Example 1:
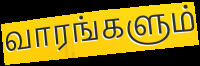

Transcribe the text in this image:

வாரங்களும்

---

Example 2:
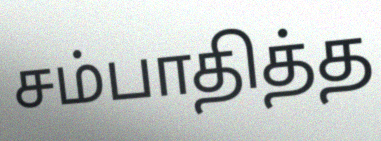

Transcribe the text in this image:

சம்பாதித்த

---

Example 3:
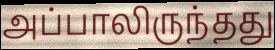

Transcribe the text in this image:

அப்பாலிருந்தது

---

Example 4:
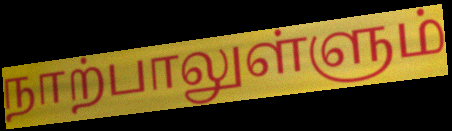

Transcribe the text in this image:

நாற்பாலுள்ளும்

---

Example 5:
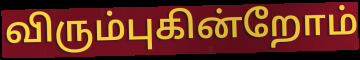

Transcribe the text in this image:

விரும்புகின்றோம்